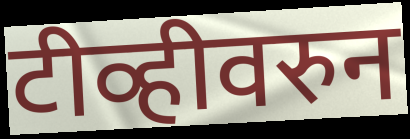
टीव्हीवरुन